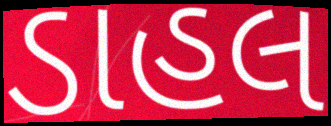
ડાહલ